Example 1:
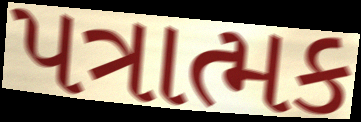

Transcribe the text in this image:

પત્રાત્મક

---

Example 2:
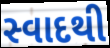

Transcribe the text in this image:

સ્વાદથી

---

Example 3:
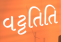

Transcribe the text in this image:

વટ્ટતિતિ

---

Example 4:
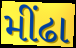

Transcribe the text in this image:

મીંઢા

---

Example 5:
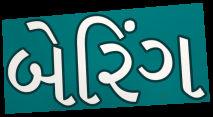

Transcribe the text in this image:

બેરિંગ